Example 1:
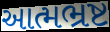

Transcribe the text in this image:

આત્મભ્રષ્ટ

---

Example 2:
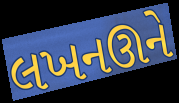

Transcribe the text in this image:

લખનઊને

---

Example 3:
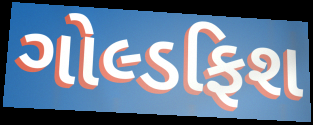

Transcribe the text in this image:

ગોલ્ડફિશ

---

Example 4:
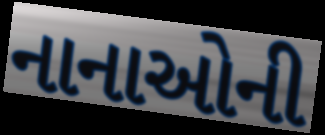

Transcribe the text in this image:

નાનાઓની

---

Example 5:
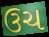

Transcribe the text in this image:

ઉચ